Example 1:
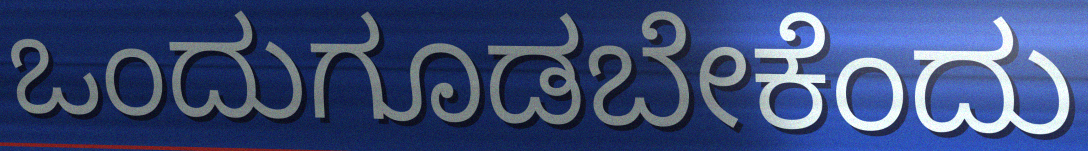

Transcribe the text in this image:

ಒಂದುಗೂಡಬೇಕೆಂದು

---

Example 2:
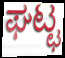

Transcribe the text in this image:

ಘಟ್ಟ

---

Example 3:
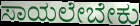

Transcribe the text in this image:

ಸಾಯಲೇಬೇಕು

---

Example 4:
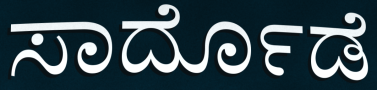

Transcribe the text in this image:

ಸಾರ್ದೊಡೆ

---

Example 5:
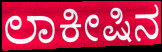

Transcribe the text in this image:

ಲಾಕೀಷಿನ